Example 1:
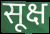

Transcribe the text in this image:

सूक्ष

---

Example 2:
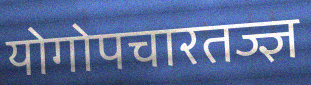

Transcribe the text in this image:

योगोपचारतज्ज्ञ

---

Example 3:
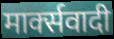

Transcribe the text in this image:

मार्क्‍सवादी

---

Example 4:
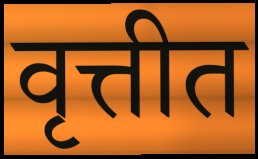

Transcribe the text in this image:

वृत्तीत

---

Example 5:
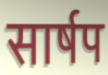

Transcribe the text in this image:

सार्षप